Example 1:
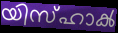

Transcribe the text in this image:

യിസ്ഹാൿ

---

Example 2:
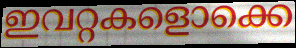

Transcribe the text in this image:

ഇവറ്റകളൊക്കെ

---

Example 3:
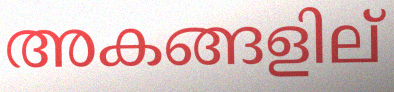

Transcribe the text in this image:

അകങ്ങളില്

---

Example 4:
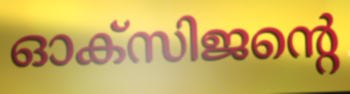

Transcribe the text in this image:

ഓക്സിജന്റെ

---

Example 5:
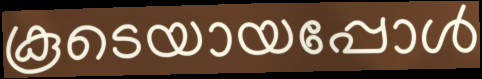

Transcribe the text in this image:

കൂടെയായപ്പോൾ